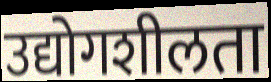
उद्योगशीलता